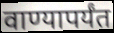
वाण्यापर्यंत